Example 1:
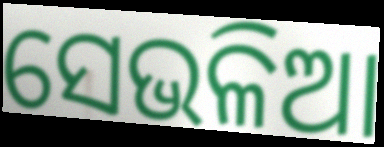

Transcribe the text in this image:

ସେଭଳିଆ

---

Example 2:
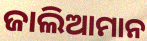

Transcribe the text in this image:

ଜାଲିଆମାନ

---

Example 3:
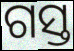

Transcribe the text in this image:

ଗସ୍ତ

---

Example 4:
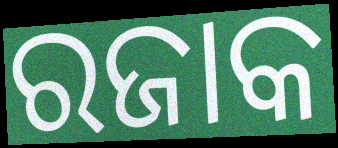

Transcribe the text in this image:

ରଜାକ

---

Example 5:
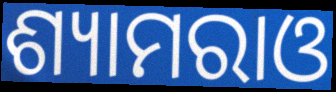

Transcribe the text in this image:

ଶ୍ୟାମରାଓ